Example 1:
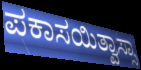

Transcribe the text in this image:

ಪಕಾಸಯಿತ್ವಾಸ್ಸಾ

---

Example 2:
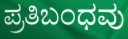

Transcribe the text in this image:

ಪ್ರತಿಬಂಧವು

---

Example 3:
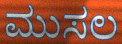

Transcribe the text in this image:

ಮುಸಲ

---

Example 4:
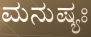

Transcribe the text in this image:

ಮನುಷ್ಯಃ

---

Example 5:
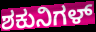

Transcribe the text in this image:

ಶಕುನಿಗಳ್